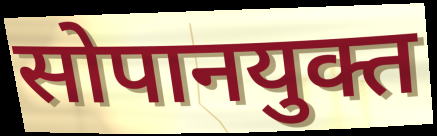
सोपानयुक्त